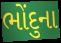
ભોંદુના